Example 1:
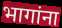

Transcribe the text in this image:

भागांना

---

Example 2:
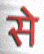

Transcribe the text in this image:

से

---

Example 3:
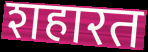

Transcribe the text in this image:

शहारत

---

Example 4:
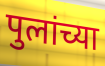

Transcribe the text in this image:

पुलांच्या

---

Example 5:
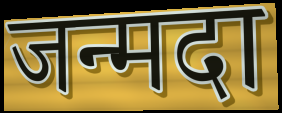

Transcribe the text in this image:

जन्मदा